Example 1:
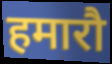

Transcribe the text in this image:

हमारौ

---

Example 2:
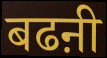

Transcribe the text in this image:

बढऩी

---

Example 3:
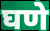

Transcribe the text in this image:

घणे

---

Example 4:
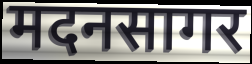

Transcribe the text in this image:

मदनसागर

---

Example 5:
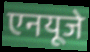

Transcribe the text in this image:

एनयूजे